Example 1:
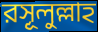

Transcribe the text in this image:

রসূলুল্লাহ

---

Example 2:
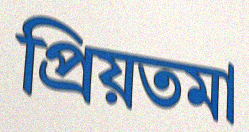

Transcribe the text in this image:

প্রিয়তমা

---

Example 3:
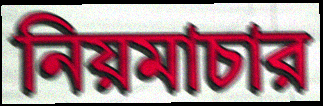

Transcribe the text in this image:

নিয়মাচার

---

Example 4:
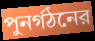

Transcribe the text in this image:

পুনর্গঠনের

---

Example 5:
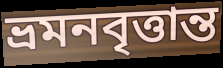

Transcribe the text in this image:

ভ্রমনবৃত্তান্ত